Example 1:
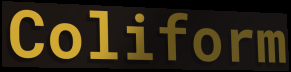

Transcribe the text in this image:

Coliform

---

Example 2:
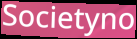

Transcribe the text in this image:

Societyno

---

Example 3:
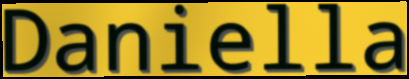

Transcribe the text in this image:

Daniella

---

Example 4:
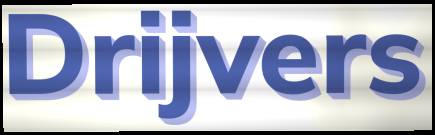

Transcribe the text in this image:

Drijvers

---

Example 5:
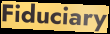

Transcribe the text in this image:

Fiduciary